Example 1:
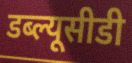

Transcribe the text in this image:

डब्ल्यूसीडी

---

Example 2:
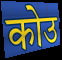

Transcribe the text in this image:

कोउ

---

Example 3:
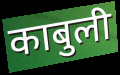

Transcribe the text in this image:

काबुली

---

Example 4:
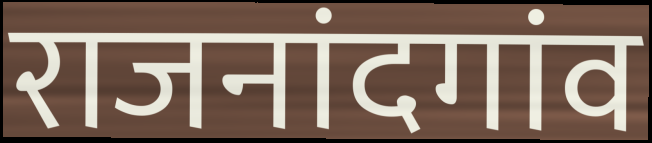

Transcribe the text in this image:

राजनांदगांव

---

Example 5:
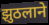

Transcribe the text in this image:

झुठलाने